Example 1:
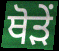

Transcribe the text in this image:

ਥੋੜੇਂ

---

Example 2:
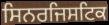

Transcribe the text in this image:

ਸਿਨਰਜਿਸਟਿਕ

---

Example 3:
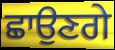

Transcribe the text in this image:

ਛਾਉਣਗੇ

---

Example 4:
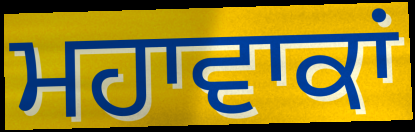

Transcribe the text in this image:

ਮਹਾਵਾਕਾਂ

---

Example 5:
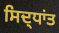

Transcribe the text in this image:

ਸਿਦ੍ਧਾਂਤ